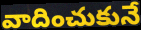
వాదించుకునే